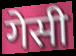
गेसी